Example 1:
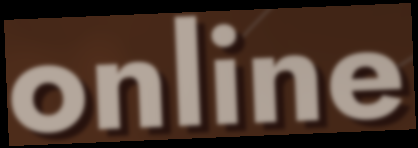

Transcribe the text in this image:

online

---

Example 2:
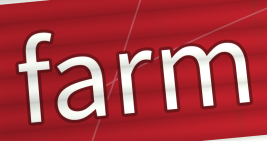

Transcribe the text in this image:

farm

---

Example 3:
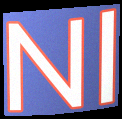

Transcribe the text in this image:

Nl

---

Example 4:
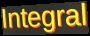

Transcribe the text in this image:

Integral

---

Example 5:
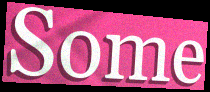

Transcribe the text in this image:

Some